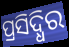
ପ୍ରସିଦ୍ଧିର